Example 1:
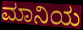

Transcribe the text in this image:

ಮಾನಿಯ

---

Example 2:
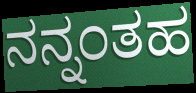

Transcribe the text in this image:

ನನ್ನಂತಹ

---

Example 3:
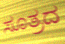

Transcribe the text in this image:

ಸೂತ್ರದ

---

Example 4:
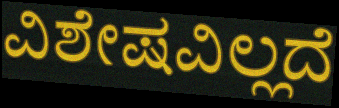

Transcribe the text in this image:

ವಿಶೇಷವಿಲ್ಲದೆ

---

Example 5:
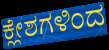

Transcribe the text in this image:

ಕ್ಲೇಶಗಳಿಂದ